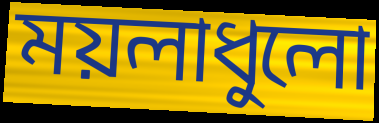
ময়লাধুলো